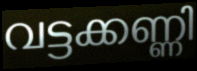
വട്ടക്കണ്ണി